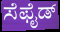
ಸೆಫೈಡ್